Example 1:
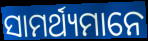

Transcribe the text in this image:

ସାମର୍ଥ୍ୟମାନେ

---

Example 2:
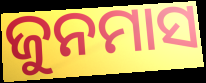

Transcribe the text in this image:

ଜୁନମାସ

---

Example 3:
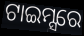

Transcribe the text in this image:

ଟାଇମ୍ସରେ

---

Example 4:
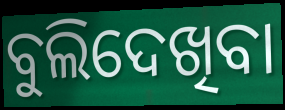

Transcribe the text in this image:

ବୁଲିଦେଖିବା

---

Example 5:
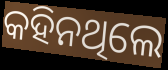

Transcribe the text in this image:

କହିନଥିଲେ